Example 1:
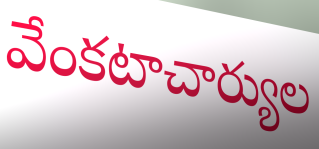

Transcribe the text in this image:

వేంకటాచార్యుల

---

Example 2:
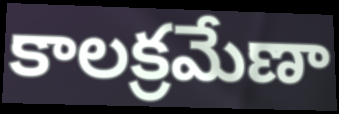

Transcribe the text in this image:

కాలక్రమేణా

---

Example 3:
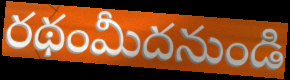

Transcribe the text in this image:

రథంమీదనుండి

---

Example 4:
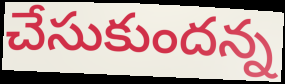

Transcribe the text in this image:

చేసుకుందన్న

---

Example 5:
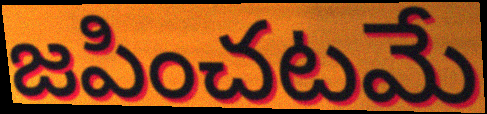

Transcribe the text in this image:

జపించటమే